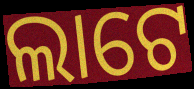
ଲାଟେ